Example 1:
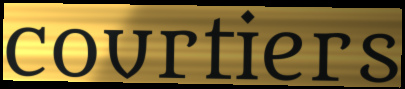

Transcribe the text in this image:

courtiers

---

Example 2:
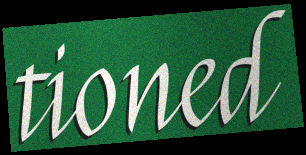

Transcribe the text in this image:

tioned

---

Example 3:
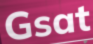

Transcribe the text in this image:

Gsat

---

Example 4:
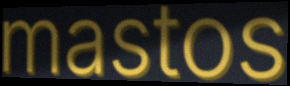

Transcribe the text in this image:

mastos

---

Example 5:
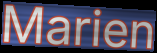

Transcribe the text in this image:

Marien